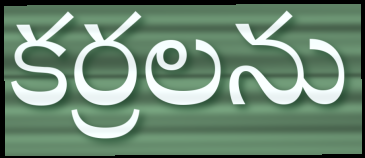
కర్రలను